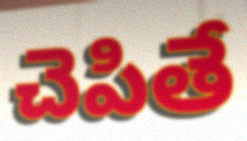
చెపితే